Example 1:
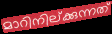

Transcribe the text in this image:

മാറിനില്ക്കുന്നത്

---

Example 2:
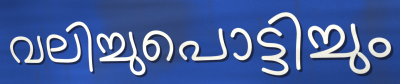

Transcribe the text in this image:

വലിച്ചുപൊട്ടിച്ചും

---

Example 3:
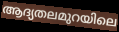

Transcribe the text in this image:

ആദ്യതലമുറയിലെ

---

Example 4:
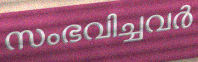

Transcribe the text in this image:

സംഭവിച്ചവർ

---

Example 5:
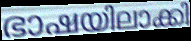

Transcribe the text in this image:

ഭാഷയിലാക്കി